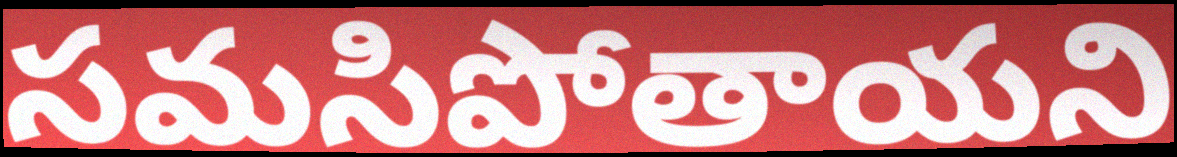
సమసిపోతాయని